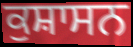
ਕੁਸ਼ਾਸਨ